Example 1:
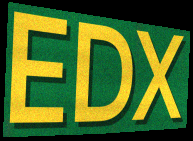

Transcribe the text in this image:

EDX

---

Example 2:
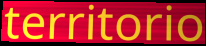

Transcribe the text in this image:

territorio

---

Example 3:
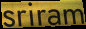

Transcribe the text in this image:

sriram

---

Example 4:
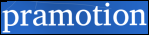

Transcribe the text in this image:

pramotion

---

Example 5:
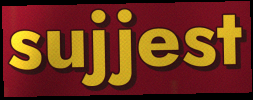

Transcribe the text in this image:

sujjest